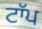
ਟਾੱਪ